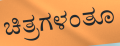
ಚಿತ್ರಗಳಂತೂ